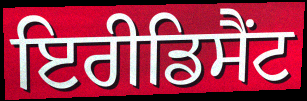
ਇਰੀਡਿਸੈਂਟ